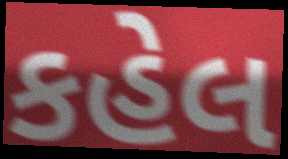
કહેલ